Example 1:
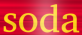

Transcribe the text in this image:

soda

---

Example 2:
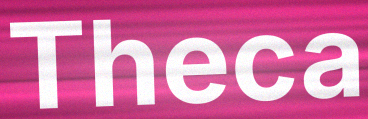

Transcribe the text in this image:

Theca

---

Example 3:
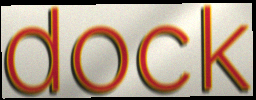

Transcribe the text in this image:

dock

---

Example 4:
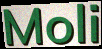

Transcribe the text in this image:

Moli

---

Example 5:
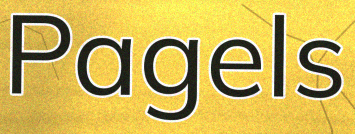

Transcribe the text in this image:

Pagels